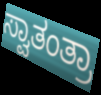
ಸ್ವಾತಂತ್ರಾ